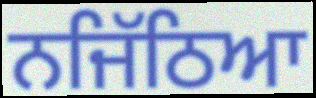
ਨਜਿੱਠਿਆ